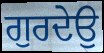
ਗੁਰਦੇਉ